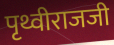
पृथ्वीराजजी